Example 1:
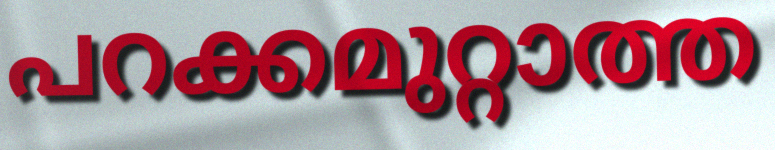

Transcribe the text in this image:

പറക്കമുറ്റാത്ത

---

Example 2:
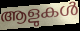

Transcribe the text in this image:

ആളുകൾ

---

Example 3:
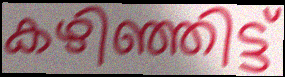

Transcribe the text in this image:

കഴിഞ്ഞിട്ട്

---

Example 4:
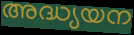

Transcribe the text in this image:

അദ്ധ്യയന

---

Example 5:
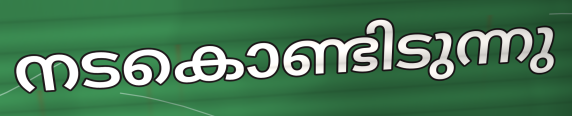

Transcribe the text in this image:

നടകൊണ്ടിടുന്നു